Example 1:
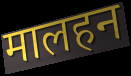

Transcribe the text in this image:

मालहन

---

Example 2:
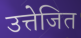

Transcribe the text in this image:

उत्तेजित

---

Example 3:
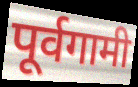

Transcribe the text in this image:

पूर्वगामी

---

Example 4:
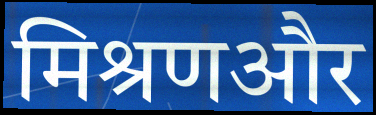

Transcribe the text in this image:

मिश्रणऔर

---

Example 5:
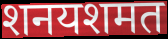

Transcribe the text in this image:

शनयशमत